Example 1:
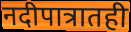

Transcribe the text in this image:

नदीपात्रातही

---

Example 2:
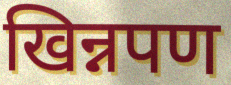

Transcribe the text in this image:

खिन्नपण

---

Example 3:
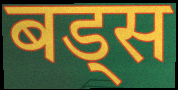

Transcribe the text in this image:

बड्स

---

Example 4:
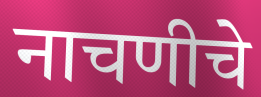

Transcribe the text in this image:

नाचणीचे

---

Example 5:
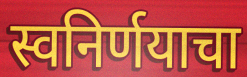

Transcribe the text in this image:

स्वनिर्णयाचा